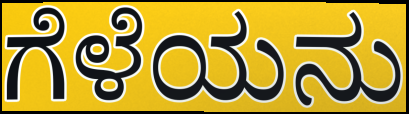
ಗೆಳೆಯನು